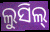
ଲୁସିଲ୍